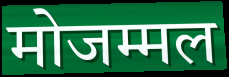
मोजम्मल